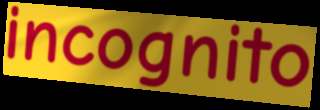
incognito